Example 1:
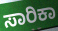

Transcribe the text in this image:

ಸಾರಿಕಾ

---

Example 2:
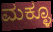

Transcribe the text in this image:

ಮಕ್ಳೂ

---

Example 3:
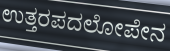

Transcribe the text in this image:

ಉತ್ತರಪದಲೋಪೇನ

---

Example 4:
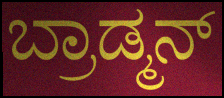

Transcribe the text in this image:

ಬ್ರಾಡ್ಮನ್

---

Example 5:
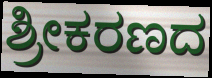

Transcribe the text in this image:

ಶ್ರೀಕರಣದ